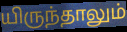
யிருந்தாலும்